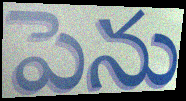
పెను